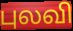
புலவி